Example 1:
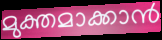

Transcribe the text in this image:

മുക്തമാക്കാൻ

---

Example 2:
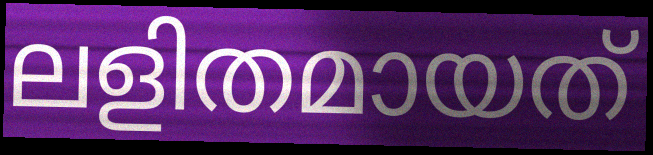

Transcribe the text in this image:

ലളിതമായത്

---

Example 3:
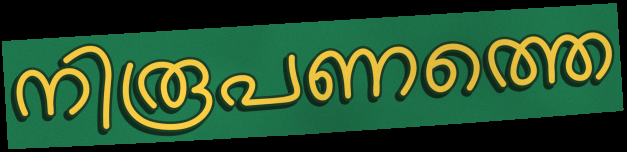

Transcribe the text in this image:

നിരൂപണത്തെ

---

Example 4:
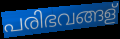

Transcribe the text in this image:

പരിഭവങ്ങള്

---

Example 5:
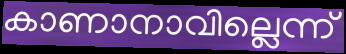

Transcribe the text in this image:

കാണാനാവില്ലെന്ന്